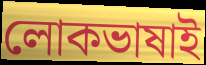
লোকভাষাই